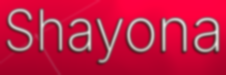
Shayona